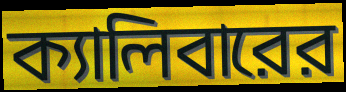
ক্যালিবারের